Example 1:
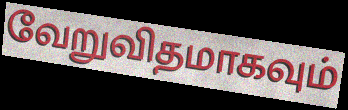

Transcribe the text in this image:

வேறுவிதமாகவும்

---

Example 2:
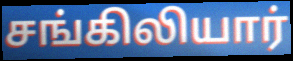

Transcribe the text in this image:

சங்கிலியார்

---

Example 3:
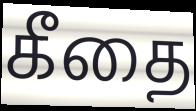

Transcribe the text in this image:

கீதை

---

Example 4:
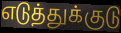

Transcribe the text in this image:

எடுத்துக்குடு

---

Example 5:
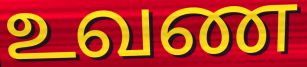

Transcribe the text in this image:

உவண